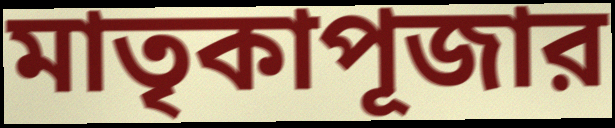
মাতৃকাপূজার